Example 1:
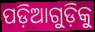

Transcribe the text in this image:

ପଡ଼ିଆଗୁଡ଼ିକୁ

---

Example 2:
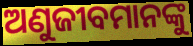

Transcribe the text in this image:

ଅଣୁଜୀବମାନଙ୍କୁ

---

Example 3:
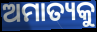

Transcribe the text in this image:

ଅମାତ୍ୟକୁ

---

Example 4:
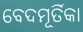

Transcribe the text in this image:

ବେଦମୂର୍ତିକା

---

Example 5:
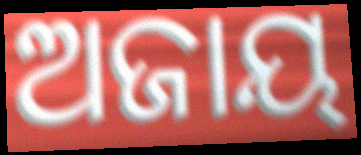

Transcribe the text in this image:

ଅଜାୟ